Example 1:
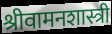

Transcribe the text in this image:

श्रीवामनशास्त्री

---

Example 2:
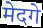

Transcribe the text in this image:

मेदगे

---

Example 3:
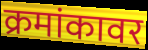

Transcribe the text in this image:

क्रमांकावर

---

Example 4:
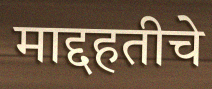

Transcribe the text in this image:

माद्दहतीचे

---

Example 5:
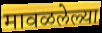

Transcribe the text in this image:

मावळलेल्या